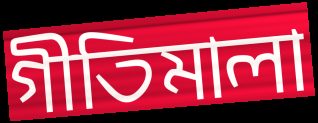
গীতিমালা